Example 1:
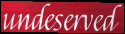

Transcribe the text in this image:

undeserved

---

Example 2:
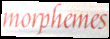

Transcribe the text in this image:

morphemes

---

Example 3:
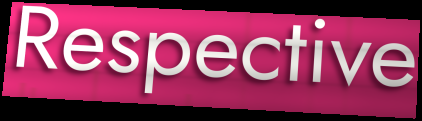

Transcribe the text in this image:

Respective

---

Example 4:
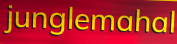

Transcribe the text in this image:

junglemahal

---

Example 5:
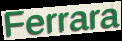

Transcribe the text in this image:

Ferrara